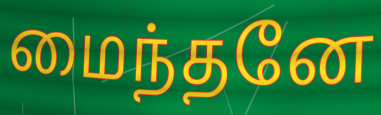
மைந்தனே